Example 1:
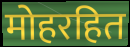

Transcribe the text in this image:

मोहरहित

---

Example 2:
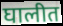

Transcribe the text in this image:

घालीत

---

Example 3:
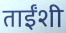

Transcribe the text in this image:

ताईंशी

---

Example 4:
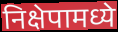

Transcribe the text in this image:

निक्षेपामध्ये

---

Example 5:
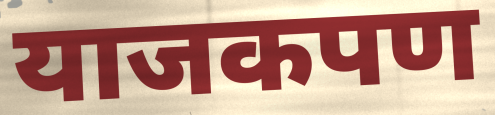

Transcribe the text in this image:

याजकपण